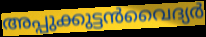
അപ്പുക്കുട്ടൻവൈദ്യർ